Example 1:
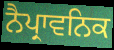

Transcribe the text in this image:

ਨੈਪ੍ਰਾਵਨਿਕ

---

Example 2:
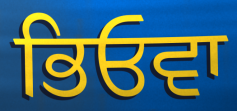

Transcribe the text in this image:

ਭਿਓਵਾ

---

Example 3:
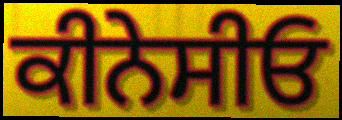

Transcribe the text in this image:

ਕੀਨੇਸੀਓ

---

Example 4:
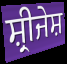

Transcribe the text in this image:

ਸ਼੍ਰੀਜੇਸ਼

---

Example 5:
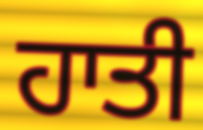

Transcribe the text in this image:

ਹਾਤੀ